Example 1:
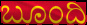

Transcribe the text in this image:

ಬೂಂದಿ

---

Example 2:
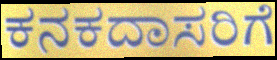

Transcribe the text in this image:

ಕನಕದಾಸರಿಗೆ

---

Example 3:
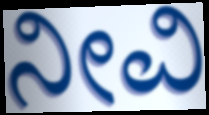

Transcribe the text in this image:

ನೀವಿ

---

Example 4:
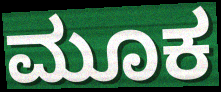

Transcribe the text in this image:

ಮೂಕ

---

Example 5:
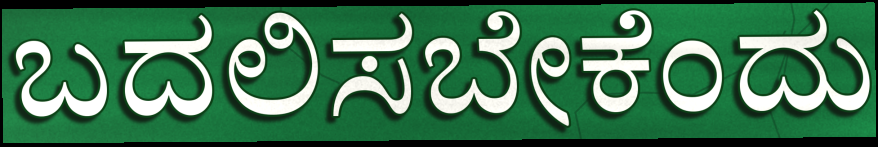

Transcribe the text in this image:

ಬದಲಿಸಬೇಕೆಂದು